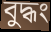
বুদ্ধং